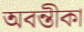
অবন্তীকা